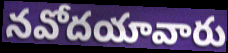
నవోదయావారు